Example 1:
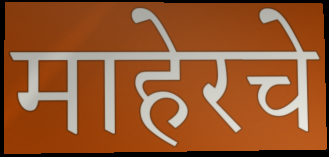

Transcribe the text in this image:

माहेरचे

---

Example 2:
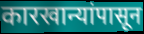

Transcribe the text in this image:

कारखान्यांपासून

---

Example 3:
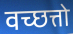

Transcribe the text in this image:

वच्छत्तो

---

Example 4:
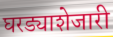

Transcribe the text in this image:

घरड्याशेजारी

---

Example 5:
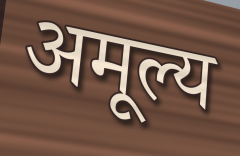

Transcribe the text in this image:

अमूल्य